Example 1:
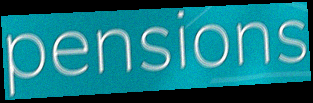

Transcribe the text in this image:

pensions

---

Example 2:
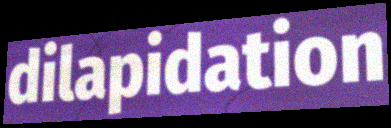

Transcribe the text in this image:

dilapidation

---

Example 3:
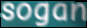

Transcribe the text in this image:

sogan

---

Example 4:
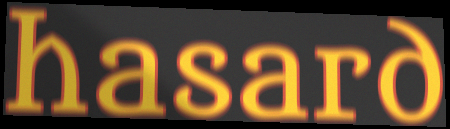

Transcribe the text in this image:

hasard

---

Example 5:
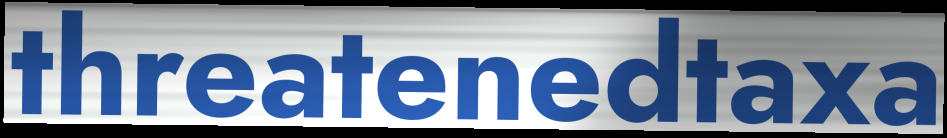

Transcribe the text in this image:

threatenedtaxa